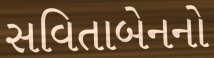
સવિતાબેનનો